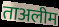
ताअलीम